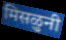
मिसळुनी